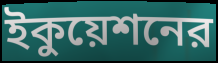
ইকুয়েশনের